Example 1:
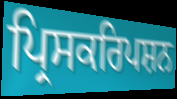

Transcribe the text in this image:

ਪ੍ਰਿਸਕਰਿਪਸ਼ਨ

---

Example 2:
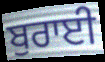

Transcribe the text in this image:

ਬੁਰਾਈ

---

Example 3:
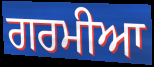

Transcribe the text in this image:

ਗਰਮੀਆ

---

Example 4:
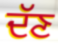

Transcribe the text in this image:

ਦੱਣ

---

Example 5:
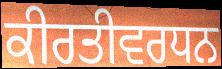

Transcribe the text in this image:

ਕੀਰਤੀਵਰਧਨ